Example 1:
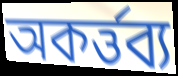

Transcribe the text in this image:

অকর্ত্তব্য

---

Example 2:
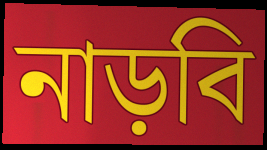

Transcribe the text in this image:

নাড়বি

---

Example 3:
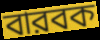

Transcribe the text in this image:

বারবক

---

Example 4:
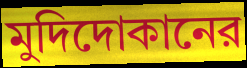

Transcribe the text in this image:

মুদিদোকানের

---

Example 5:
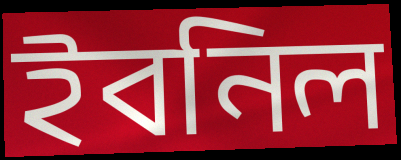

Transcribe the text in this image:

ইবনিল